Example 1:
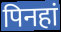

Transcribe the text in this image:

पिनहां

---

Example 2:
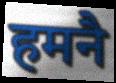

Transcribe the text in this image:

हमनै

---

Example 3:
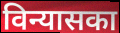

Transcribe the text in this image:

विन्यासका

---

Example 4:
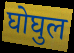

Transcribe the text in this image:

घोघुल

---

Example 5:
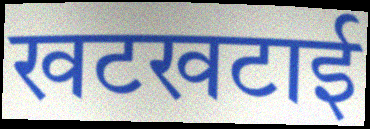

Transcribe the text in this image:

खटखटाई